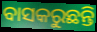
ବାସକରୁଛନ୍ତି